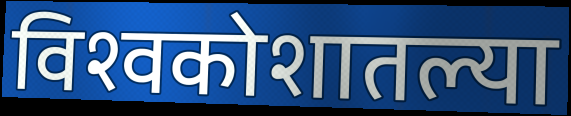
विश्वकोशातल्या